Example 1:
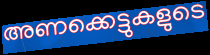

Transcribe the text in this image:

അണക്കെട്ടുകളുടെ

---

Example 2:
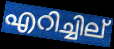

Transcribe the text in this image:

എറിച്ചില്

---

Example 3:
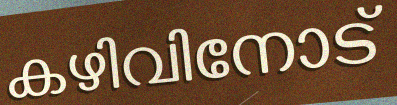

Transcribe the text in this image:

കഴിവിനോട്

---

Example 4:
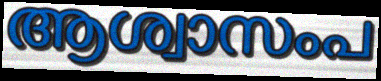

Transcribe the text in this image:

ആശ്വാസംപ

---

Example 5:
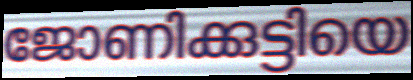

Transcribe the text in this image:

ജോണിക്കുട്ടിയെ